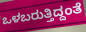
ಒಳಬರುತ್ತಿದ್ದಂತೆ